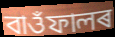
বাওঁফালৰ